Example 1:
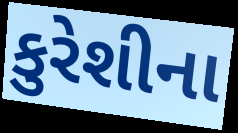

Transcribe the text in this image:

કુરેશીના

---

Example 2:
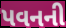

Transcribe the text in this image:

પવનની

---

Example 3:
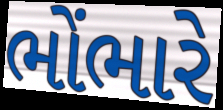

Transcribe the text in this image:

ભોંભારે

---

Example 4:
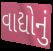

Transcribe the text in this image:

વાદ્યોનું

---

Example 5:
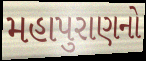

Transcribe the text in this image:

મહાપુરાણનો